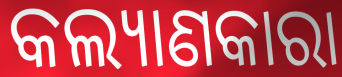
କଲ୍ୟାଣକାରା